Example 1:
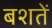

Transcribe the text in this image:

बशतें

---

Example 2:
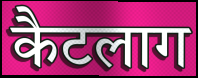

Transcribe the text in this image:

कैटलाग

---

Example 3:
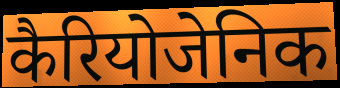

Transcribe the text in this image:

कैरियोजेनिक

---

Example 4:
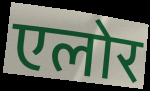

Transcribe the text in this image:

एलोर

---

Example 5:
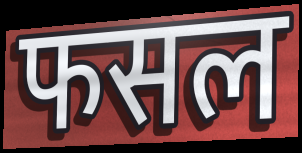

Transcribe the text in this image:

फसल